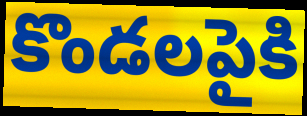
కొండలపైకి